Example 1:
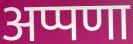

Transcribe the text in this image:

अप्पणा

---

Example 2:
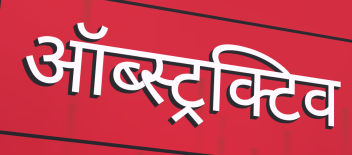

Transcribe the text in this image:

ऑब्स्ट्रक्टिव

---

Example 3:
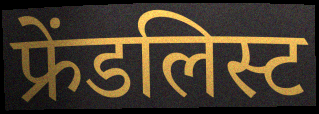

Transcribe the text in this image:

फ्रेंडलिस्ट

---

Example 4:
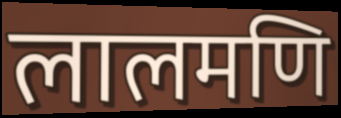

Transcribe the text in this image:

लालमणि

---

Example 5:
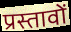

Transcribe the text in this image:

प्रस्‍तावों